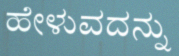
ಹೇಳುವದನ್ನು